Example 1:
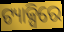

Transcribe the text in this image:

ଟ୍ୟାକ୍ସିରେ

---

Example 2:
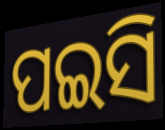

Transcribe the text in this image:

ପଇସି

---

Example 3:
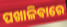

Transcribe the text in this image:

ପଖାଳିବାରେ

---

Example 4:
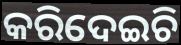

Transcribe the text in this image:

କରିଦେଇଚି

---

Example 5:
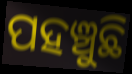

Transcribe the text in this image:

ପହଞ୍ଚୁଛି